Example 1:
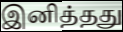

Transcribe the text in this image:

இனித்தது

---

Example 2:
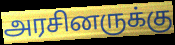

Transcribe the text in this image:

அரசினருக்கு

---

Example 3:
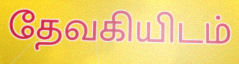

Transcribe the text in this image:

தேவகியிடம்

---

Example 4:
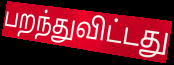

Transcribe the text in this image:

பறந்துவிட்டது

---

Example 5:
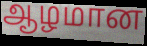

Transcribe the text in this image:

ஆழமான